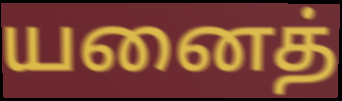
யனைத்